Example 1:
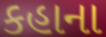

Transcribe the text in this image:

કહાના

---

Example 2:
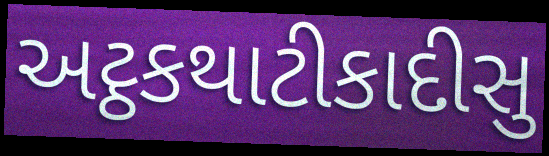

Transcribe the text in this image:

અટ્ઠકથાટીકાદીસુ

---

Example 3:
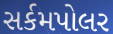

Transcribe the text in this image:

સર્કમપોલર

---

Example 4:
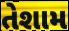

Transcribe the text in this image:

તેશામ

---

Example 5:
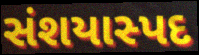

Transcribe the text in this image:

સંશયાસ્પદ